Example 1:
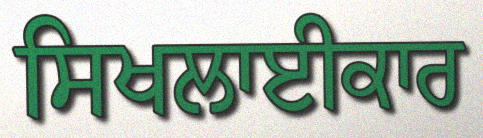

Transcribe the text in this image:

ਸਿਖਲਾਈਕਾਰ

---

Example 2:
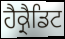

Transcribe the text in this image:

ਹੈਕ੍ਰੈਡਿਟ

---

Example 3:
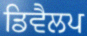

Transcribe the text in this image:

ਡਿਵੈਲਪ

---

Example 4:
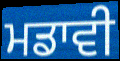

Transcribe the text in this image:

ਮਡਾਵੀ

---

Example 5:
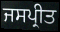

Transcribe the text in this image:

ਜਸਪ੍ਰੀਤ